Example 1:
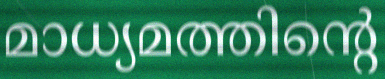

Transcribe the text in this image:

മാധ്യമത്തിന്റെ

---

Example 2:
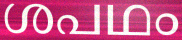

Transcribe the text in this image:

ശപഥം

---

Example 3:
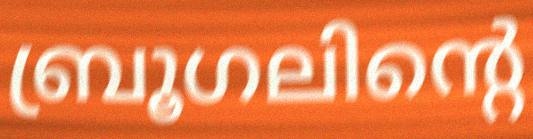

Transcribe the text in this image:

ബ്രൂഗലിന്റെ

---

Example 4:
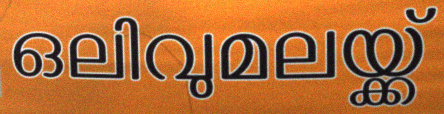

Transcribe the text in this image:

ഒലിവുമലയ്ക്ക്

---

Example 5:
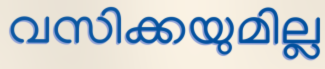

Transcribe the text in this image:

വസിക്കയുമില്ല